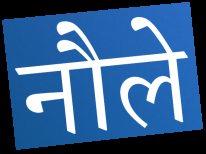
नौले